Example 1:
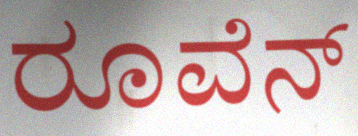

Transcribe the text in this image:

ರೂವೆನ್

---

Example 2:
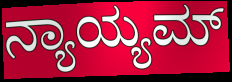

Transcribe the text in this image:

ನ್ಯಾಯ್ಯಮ್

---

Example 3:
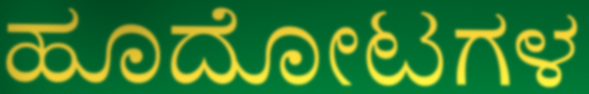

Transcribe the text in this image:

ಹೂದೋಟಗಳ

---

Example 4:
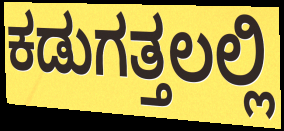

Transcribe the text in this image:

ಕಡುಗತ್ತಲಲ್ಲಿ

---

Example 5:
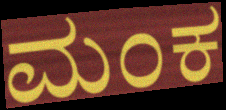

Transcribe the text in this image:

ಮಂಕ